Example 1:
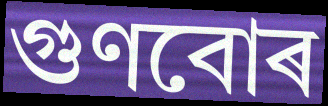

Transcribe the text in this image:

গুণবোৰ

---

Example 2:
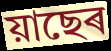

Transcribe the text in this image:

য়াছেৰ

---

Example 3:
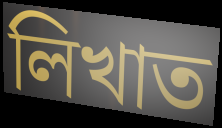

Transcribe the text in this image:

লিখাত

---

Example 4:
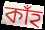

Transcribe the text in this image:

কাঁহ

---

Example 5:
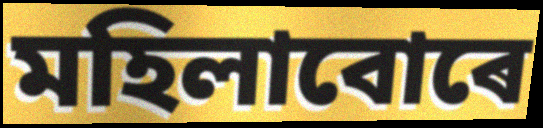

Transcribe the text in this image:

মহিলাবোৰে